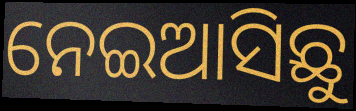
ନେଇଆସିଛୁ